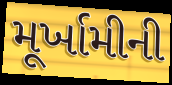
મૂર્ખામીની